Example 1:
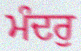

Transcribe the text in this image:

ਮੰਦਰੁ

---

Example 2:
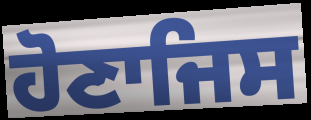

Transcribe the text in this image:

ਹੋਣਾਜਿਸ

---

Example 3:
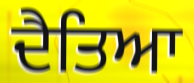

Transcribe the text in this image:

ਦੈਤਿਆ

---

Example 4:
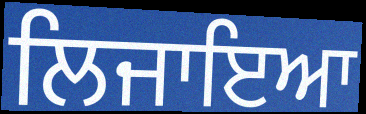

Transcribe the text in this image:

ਲਿਜਾਇਆ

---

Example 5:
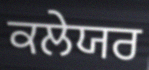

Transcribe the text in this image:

ਕਲੇਯਰ